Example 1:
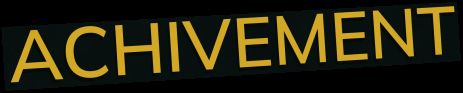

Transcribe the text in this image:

ACHIVEMENT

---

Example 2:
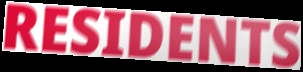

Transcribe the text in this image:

RESIDENTS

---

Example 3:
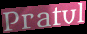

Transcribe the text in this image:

Pratul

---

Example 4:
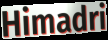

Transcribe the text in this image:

Himadri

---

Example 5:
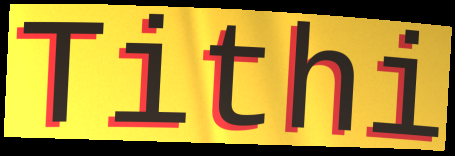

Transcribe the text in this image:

Tithi